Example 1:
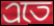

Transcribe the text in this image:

এতে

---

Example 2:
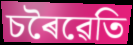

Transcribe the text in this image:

চৰৈৱেতি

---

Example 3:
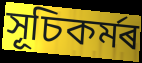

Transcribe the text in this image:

সূচিকৰ্মৰ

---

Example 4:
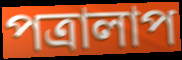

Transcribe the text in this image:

পত্ৰালাপ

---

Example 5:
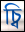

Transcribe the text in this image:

চ্বি